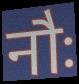
नौः